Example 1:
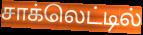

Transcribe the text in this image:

சாக்லெட்டில்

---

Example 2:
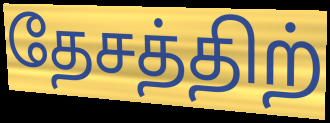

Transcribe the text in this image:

தேசத்திற்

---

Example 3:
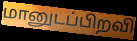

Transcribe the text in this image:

மானுடப்பிறவி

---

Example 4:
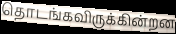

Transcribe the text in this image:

தொடங்கவிருக்கின்றன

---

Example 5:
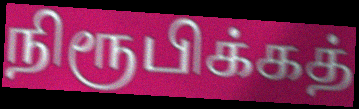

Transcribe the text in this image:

நிரூபிக்கத்